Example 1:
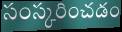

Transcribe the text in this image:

సంస్కరించడం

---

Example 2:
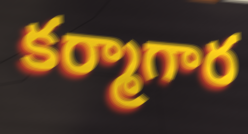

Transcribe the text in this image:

కర్మాగార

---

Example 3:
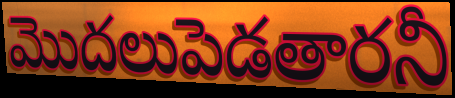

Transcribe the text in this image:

మొదలుపెడతారనీ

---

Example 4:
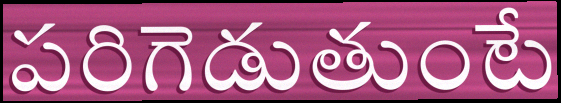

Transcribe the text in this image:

పరిగెడుతుంటే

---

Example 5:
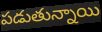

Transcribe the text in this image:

పడుతున్నాయి